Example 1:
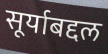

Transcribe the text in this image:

सूर्याबद्दल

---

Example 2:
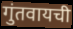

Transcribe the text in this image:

गुंतवायची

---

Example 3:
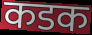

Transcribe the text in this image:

कडक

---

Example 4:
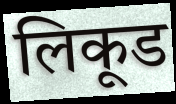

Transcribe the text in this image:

लिकूड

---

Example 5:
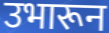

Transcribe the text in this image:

उभारून